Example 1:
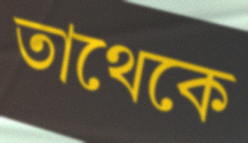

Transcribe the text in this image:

তাথেকে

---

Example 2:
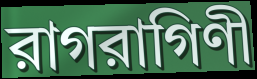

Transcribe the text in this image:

রাগরাগিণী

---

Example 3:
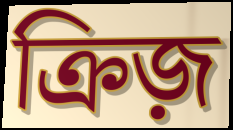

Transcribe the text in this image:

ক্রিজ়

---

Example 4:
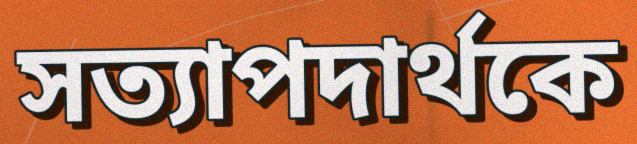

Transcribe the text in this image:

সত্যাপদার্থকে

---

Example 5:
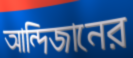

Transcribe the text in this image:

আন্দিজানের